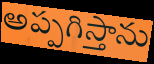
అప్పగిస్తాను